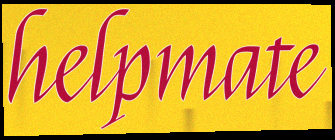
helpmate